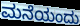
ಮನೆಯಂದು